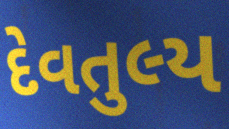
દેવતુલ્ય